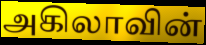
அகிலாவின்